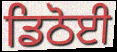
ਡਿਠੋਈ